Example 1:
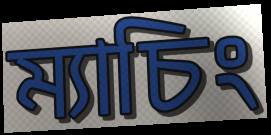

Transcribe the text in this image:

ম্যাচিং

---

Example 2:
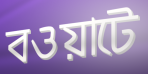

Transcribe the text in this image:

বওয়াটে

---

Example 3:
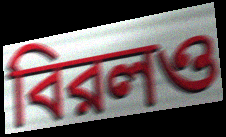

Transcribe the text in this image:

বিরলও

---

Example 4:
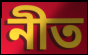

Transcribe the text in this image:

নীত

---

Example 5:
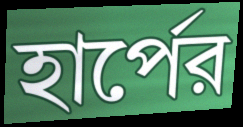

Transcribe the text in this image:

হার্পের